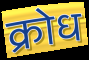
क्रोध